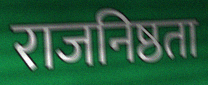
राजनिष्ठता